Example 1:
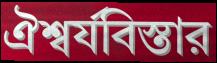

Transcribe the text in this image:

ঐশ্বর্যবিস্তার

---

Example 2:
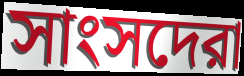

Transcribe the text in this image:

সাংসদেরা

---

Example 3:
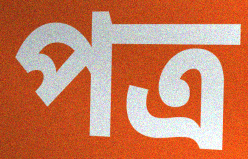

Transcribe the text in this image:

পত্র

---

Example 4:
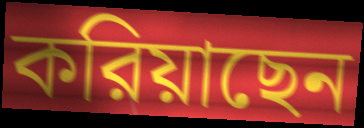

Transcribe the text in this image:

করিয়াছেন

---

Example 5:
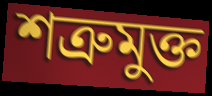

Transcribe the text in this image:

শত্রুমুক্ত